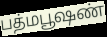
பத்மபூஷண்